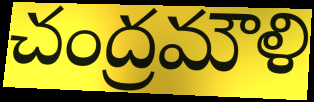
చంద్రమౌళి